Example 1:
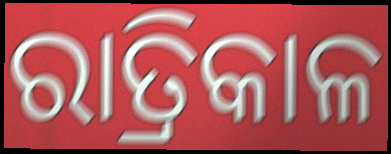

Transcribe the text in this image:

ରାତ୍ରିକାଳ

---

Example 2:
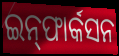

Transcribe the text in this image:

ଇନ୍‌ଫାର୍କସନ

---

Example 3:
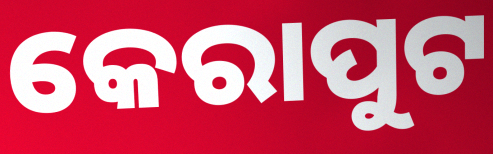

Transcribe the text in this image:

କେରାପୁଟ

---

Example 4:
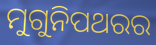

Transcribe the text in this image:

ମୁଗୁନିପଥରର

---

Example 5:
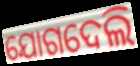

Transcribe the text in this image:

ଯୋଗଦେଲି